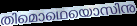
തിമൊഥെയൊസിനു